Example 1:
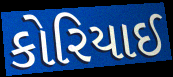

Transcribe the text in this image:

કોરિયાઈ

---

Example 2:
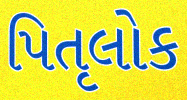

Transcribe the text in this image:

પિતૃલોક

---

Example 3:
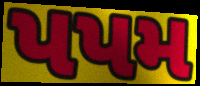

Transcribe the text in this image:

પપમ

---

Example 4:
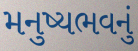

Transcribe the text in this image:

મનુષ્યભવનું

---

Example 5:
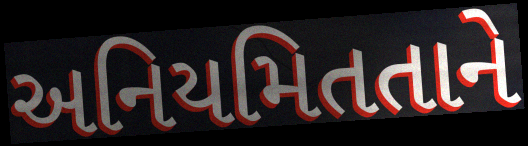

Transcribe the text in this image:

અનિયમિતતાને